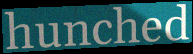
hunched